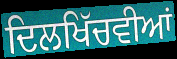
ਦਿਲਖਿੱਚਵੀਆਂ